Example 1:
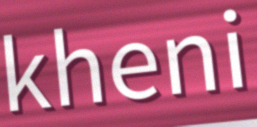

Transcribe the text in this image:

kheni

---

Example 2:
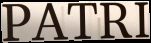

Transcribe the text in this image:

PATRI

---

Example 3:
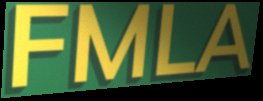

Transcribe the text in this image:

FMLA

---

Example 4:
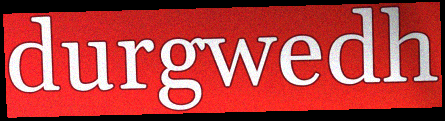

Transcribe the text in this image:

durgwedh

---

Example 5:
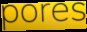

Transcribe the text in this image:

pores